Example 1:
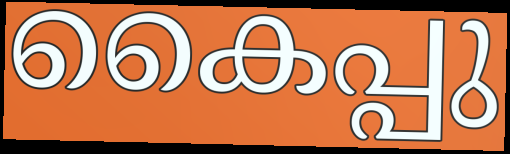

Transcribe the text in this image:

കൈപ്പു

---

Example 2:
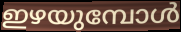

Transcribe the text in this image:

ഇഴയുമ്പോൾ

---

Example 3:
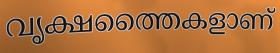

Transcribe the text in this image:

വൃക്ഷത്തൈകളാണ്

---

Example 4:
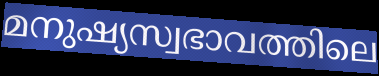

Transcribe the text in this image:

മനുഷ്യസ്വഭാവത്തിലെ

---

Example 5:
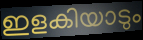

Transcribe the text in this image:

ഇളകിയാടും